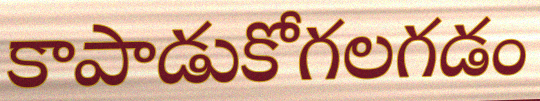
కాపాడుకోగలగడం